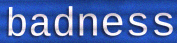
badness